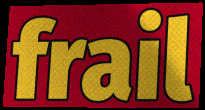
frail